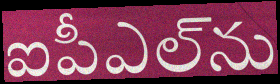
ఐపీఎల్‌ను